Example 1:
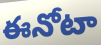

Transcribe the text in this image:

ఈనోటా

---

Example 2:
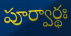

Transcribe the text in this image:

పూర్వార్థః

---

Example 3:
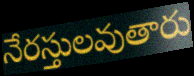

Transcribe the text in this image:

నేరస్తులవుతారు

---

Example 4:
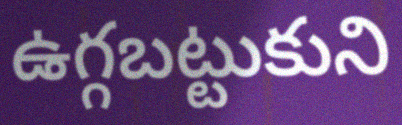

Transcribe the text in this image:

ఉగ్గబట్టుకుని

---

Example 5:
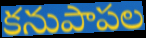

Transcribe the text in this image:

కనుపాపల